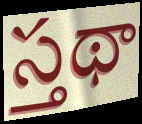
స్తథా